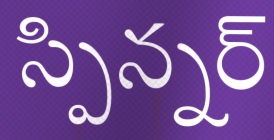
స్పిన్నర్